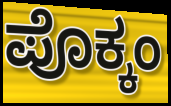
ಪೊಕ್ಕಂ